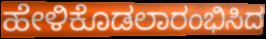
ಹೇಳಿಕೊಡಲಾರಂಭಿಸಿದ